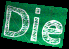
Die